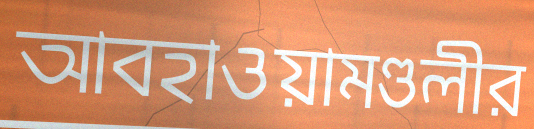
আবহাওয়ামণ্ডলীর